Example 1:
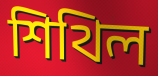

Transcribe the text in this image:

শিথিল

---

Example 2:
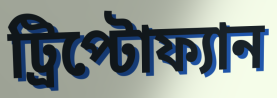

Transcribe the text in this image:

ট্রিপ্টোফ্যান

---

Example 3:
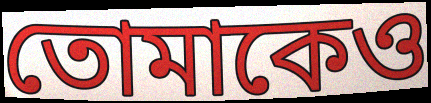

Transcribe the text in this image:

তোমাকেও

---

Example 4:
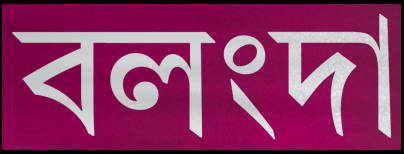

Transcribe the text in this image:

বলংদা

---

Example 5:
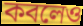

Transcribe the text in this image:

কবলেও